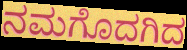
ನಮಗೊದಗಿದ